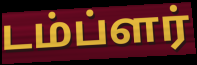
டம்ப்ளர்